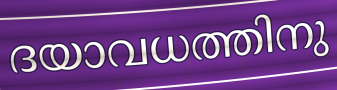
ദയാവധത്തിനു